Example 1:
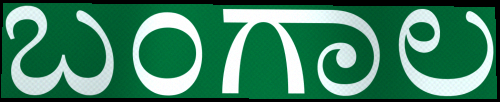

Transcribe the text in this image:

ಬಂಗಾಲ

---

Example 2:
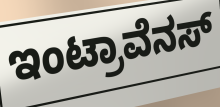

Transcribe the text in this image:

ಇಂಟ್ರಾವೆನಸ್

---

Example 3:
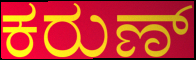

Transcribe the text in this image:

ಕರುಣ್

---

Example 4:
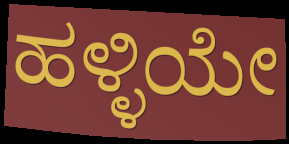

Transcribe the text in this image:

ಹಳ್ಳಿಯೇ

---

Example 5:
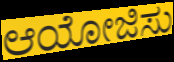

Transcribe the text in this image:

ಆಯೋಜಿಸು